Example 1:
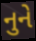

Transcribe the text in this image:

નુને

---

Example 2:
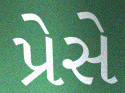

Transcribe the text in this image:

પ્રેસે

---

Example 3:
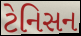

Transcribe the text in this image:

ટેનિસન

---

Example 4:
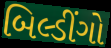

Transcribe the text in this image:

બિલ્ડીંગો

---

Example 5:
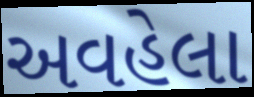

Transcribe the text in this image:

અવહેલા